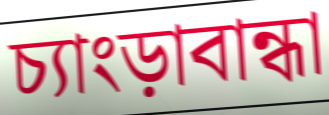
চ্যাংড়াবান্ধা